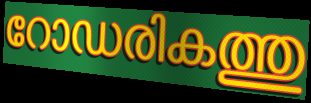
റോഡരികത്തു